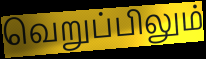
வெறுப்பிலும்